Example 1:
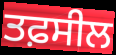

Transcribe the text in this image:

ਤਫ਼ਸੀਲ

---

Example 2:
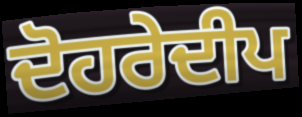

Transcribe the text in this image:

ਦੋਹਰੇਦੀਪ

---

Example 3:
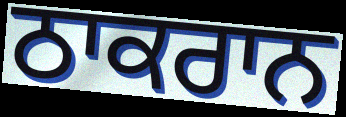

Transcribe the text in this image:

ਠਾਕਰਾਨ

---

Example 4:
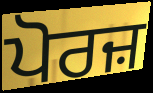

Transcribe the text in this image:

ਪੋਰਜ਼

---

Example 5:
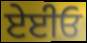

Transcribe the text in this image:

ਏਈਓ